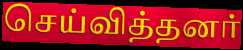
செய்வித்தனர்